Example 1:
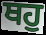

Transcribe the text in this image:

ਥਹੁ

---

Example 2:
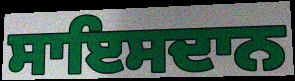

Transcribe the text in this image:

ਸਾਇਸਦਾਨ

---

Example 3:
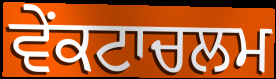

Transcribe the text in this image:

ਵੇਂਕਟਾਚਲਮ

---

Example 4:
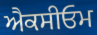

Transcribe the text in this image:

ਐਕਸੀਓਮ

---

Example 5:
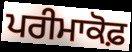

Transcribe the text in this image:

ਪਰੀਮਾਕੋਫ਼